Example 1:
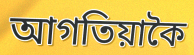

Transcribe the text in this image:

আগতিয়াকৈ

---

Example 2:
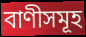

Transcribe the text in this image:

বাণীসমূহ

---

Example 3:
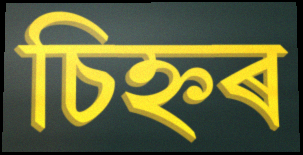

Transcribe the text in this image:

চিহ্নৰ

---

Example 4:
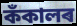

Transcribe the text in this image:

কঁকালৰ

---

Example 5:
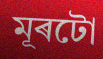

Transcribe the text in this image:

মূৰটো